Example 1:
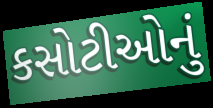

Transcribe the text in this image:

કસોટીઓનું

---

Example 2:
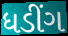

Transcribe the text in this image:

ધડીંગ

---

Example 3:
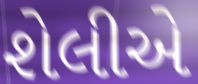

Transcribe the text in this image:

શેલીએ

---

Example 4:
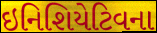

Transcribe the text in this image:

ઇનિશિયેટિવના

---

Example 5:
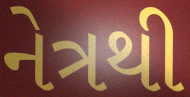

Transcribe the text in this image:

નેત્રથી